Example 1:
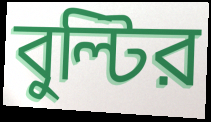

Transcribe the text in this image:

বুল্টির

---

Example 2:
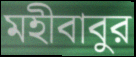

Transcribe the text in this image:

মহীবাবুর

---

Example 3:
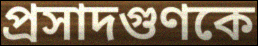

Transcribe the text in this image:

প্রসাদগুণকে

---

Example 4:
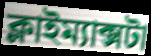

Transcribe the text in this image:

ক্লাইম্যাক্সটা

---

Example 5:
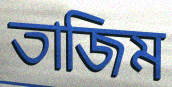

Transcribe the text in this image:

তাজিম